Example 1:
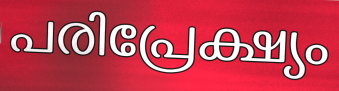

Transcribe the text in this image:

പരിപ്രേക്ഷ്യം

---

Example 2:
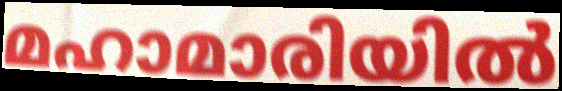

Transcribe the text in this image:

മഹാമാരിയിൽ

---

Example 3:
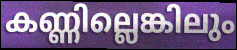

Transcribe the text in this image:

കണ്ണില്ലെങ്കിലും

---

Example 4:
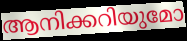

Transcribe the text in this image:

ആനിക്കറിയുമോ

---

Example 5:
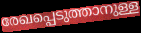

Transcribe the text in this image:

രേഖപ്പെടുത്താനുള്ള